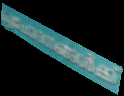
പ്രചോദനങ്ങൾക്ക്